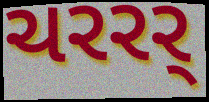
ચરરર્